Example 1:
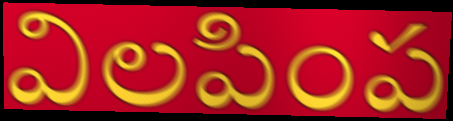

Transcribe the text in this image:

విలపింప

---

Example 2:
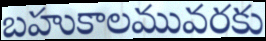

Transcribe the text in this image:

బహుకాలమువరకు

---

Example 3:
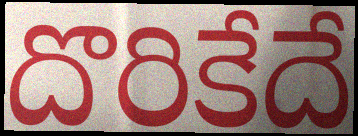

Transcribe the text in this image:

దొరికేదే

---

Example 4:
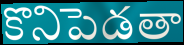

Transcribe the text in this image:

కొనిపెడతా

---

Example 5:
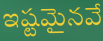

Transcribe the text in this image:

ఇష్టమైనవే